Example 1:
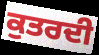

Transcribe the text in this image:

ਕੁਤਰਦੀ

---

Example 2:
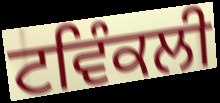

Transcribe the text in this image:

ਟਵਿੰਕਲੀ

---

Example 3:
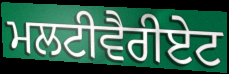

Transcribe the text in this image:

ਮਲਟੀਵੈਰੀਏਟ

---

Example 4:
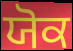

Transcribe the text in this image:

ਯੋਕ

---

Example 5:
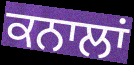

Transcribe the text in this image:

ਕਨਾਲਾਂ